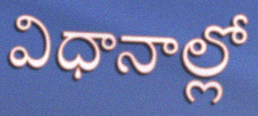
విధానాల్లో